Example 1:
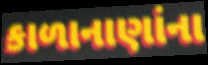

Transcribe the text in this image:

કાળાનાણાંના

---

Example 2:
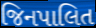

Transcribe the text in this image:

જિનપાલિત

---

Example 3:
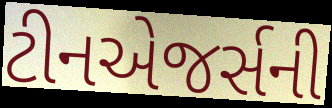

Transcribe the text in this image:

ટીનએજર્સની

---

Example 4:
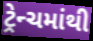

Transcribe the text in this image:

ટ્રેન્ચમાંથી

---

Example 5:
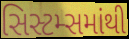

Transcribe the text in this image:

સિસ્ટમ્સમાંથી